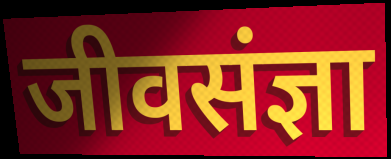
जीवसंज्ञा